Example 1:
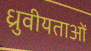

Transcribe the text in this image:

ध्रुवीयताओं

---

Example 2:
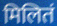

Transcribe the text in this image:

मिलितं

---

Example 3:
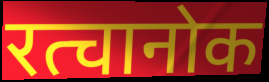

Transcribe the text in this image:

रत्चानोक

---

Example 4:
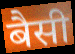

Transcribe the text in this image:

बैसी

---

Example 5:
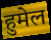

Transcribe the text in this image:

हुमेल